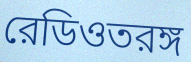
রেডিওতরঙ্গ